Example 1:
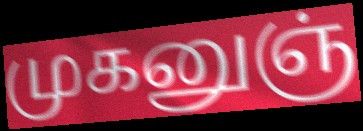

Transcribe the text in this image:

முகனுஞ்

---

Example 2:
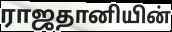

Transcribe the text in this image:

ராஜதானியின்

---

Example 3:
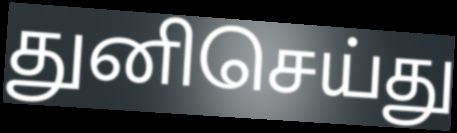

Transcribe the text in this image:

துனிசெய்து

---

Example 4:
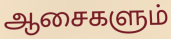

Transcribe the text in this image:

ஆசைகளும்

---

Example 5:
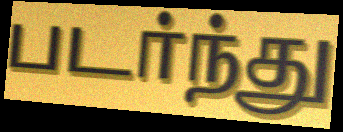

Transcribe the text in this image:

படர்ந்து